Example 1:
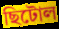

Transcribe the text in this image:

ছিটোল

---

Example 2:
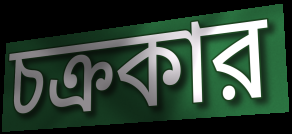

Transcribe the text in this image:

চক্রকার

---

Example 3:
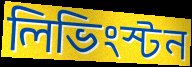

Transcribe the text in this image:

লিভিংস্টন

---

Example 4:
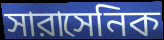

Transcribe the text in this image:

সারাসেনিক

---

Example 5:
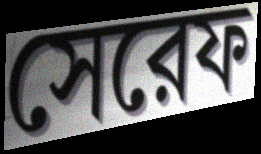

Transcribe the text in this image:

সেরেফ